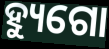
ହ୍ୟୁଗୋ